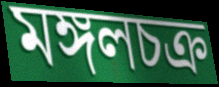
মঙ্গলচক্র